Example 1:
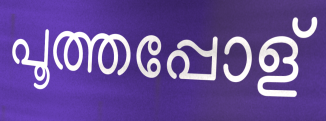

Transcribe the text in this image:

പൂത്തപ്പോള്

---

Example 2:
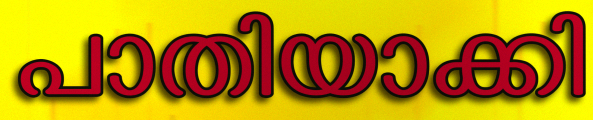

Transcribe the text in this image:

പാതിയാക്കി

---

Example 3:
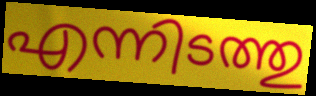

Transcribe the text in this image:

എന്നിടത്തു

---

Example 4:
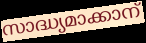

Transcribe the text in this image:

സാദ്ധ്യമാക്കാന്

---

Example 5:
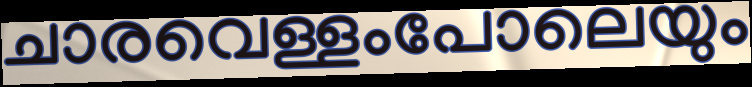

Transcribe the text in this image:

ചാരവെള്ളംപോലെയും